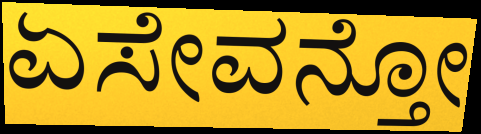
ಏಸೇವನ್ತೋ